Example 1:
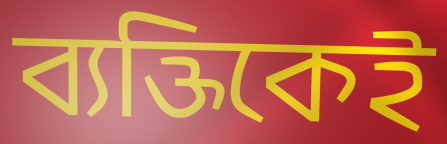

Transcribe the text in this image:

ব্যক্তিকেই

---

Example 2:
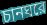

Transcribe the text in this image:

চানঘরে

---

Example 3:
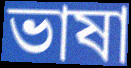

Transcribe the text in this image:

ভাষা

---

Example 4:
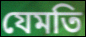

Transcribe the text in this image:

যেমতি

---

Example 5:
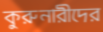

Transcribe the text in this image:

কুরুনারীদের